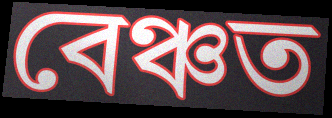
বেঞ্চত